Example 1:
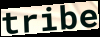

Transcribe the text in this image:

tribe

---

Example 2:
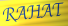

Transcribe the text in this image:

RAHAT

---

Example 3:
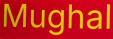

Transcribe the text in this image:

Mughal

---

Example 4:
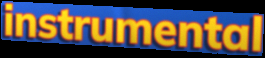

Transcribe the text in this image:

instrumental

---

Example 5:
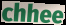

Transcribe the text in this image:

chhee